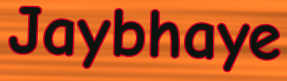
Jaybhaye